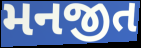
મનજીત